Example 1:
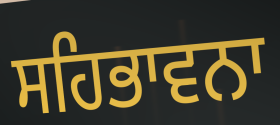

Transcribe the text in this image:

ਸਹਿਭਾਵਨਾ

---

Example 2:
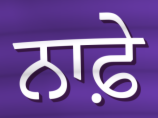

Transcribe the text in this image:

ਨਾਫ਼ੇ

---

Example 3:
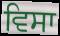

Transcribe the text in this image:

ਵਿਸਾ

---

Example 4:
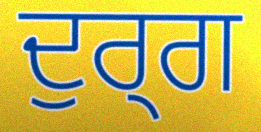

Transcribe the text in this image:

ਦੁਰ੍ਗ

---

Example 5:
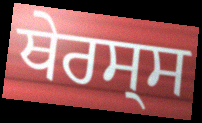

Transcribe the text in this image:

ਥੇਰਸ੍ਸ